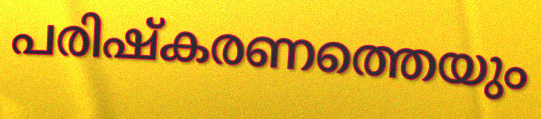
പരിഷ്കരണത്തെയും